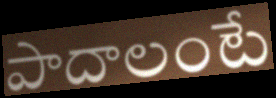
పాదాలంటే